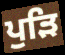
ਪੁੜਿ